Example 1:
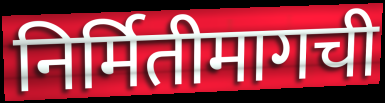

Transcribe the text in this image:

निर्मितीमागची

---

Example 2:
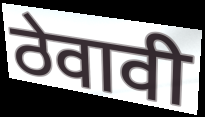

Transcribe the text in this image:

ठेवावी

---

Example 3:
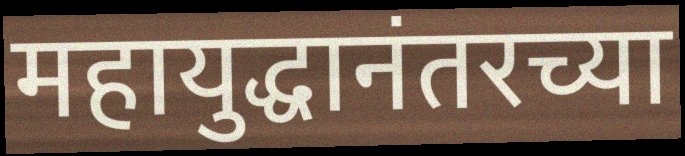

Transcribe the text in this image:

महायुद्धानंतरच्या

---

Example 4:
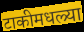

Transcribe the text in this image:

टाकीमधल्या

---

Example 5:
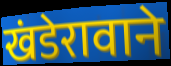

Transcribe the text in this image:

खंडेरावाने